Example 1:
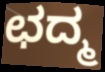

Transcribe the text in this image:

ಛದ್ಮ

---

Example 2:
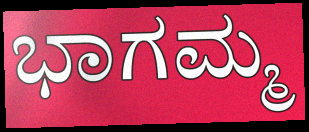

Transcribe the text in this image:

ಭಾಗಮ್ಮ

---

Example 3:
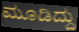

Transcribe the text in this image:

ಮೂಡಿದ್ದು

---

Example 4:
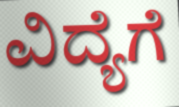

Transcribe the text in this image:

ವಿದ್ಯೆಗೆ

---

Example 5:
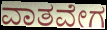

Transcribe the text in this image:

ವಾತವೇಗ